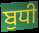
ਬੁਧੀ